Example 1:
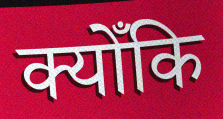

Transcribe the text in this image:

क्योँकि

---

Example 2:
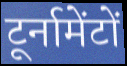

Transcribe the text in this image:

टूर्नामेंटों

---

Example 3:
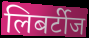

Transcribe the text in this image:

लिबर्टीज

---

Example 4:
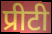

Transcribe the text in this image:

प्रीटी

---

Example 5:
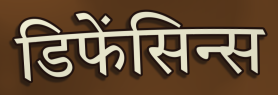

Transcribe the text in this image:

डिफेंसिन्स